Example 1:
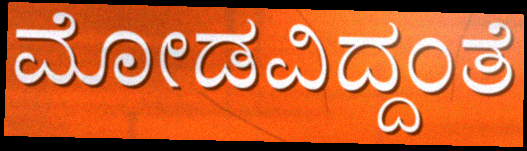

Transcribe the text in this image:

ಮೋಡವಿದ್ದಂತೆ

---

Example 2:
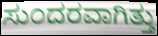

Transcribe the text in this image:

ಸುಂದರವಾಗಿತ್ತು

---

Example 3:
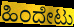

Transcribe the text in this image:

ಹಿಂದೇಟು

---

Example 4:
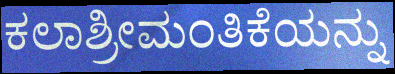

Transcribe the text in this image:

ಕಲಾಶ್ರೀಮಂತಿಕೆಯನ್ನು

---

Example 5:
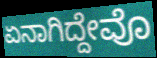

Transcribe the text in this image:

ಏನಾಗಿದ್ದೇವೊ